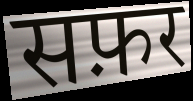
सफ़र